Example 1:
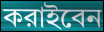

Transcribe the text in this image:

করাইবেন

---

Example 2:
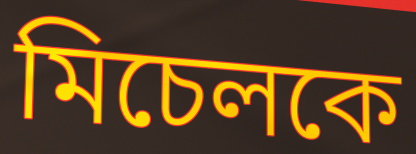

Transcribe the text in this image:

মিচেলকে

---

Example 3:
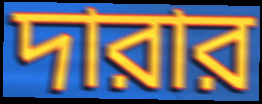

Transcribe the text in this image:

দারার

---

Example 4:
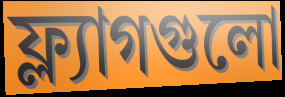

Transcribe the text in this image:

ফ্ল্যাগগুলো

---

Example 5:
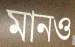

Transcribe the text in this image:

মানও